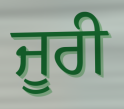
ਜੂਰੀ